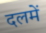
दलमें